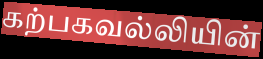
கற்பகவல்லியின்